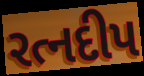
રત્નદીપ